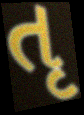
તૃ